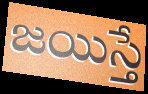
జయిస్తే